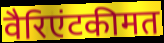
वैरिएंटकीमत